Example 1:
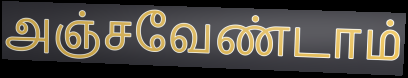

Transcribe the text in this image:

அஞ்சவேண்டாம்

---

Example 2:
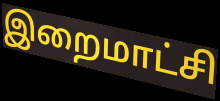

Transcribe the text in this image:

இறைமாட்சி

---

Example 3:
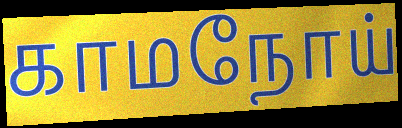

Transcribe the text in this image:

காமநோய்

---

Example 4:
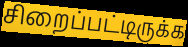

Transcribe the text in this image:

சிறைப்பட்டிருக்க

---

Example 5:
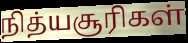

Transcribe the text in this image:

நித்யசூரிகள்